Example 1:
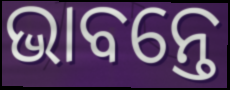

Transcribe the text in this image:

ଭାବନ୍ତେ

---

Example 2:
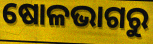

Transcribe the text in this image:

ଷୋଳଭାଗରୁ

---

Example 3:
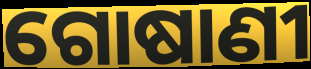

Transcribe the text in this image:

ଗୋଷାଣୀ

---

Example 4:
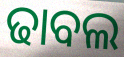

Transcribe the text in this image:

ଢାବଲ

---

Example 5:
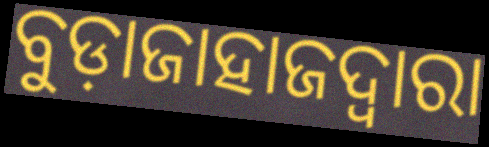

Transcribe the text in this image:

ବୁଡ଼ାଜାହାଜଦ୍ୱାରା